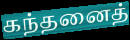
கந்தனைத்